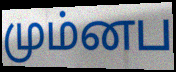
மும்னப